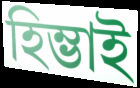
হিম্ভাই